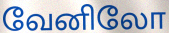
வேனிலோ